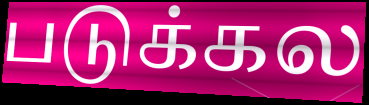
படுக்கல